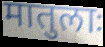
मातुलाः